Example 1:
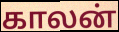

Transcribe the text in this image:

காலன்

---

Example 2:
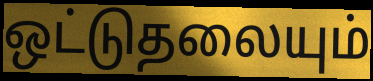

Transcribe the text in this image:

ஒட்டுதலையும்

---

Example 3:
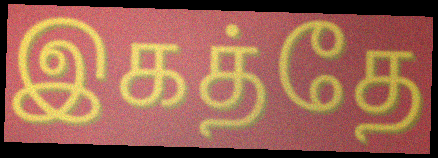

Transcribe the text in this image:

இகத்தே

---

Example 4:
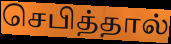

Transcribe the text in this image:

செபித்தால்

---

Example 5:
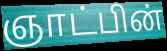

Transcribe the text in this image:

ஞாட்பின்